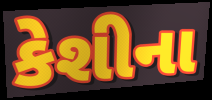
કેશીના